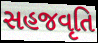
સહજવૃતિ